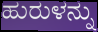
ಹುರುಳನ್ನು